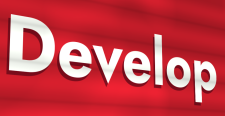
Develop